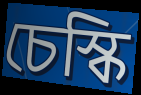
চেস্কি